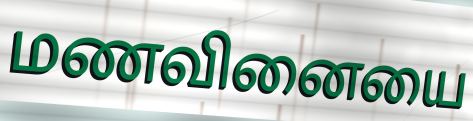
மணவினையை